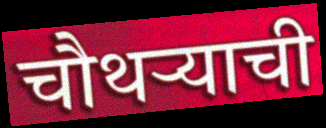
चौथऱ्याची